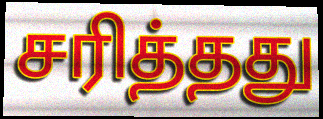
சரித்தது